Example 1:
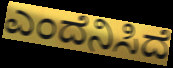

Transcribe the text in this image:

ಎಂದೆನಿಸಿದೆ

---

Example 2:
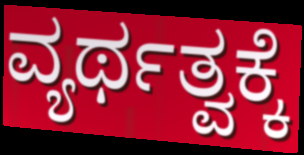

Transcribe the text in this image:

ವ್ಯರ್ಥತ್ವಕ್ಕೆ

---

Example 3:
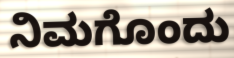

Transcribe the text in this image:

ನಿಮಗೊಂದು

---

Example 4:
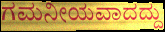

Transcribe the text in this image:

ಗಮನೀಯವಾದದ್ದು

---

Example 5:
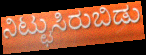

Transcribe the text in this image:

ನಿಟ್ಟುಸಿರುಬಿಡು